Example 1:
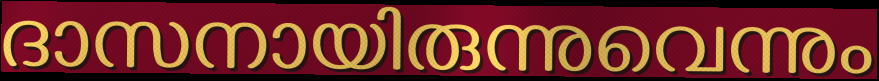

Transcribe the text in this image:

ദാസനായിരുന്നുവെന്നും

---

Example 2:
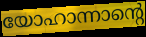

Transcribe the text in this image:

യോഹാന്നാന്റെ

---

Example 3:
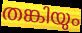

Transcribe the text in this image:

തങ്കിയും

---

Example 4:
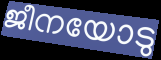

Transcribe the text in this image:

ജീനയോടു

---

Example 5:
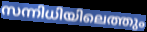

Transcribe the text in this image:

സന്നിധിയിലെത്തും